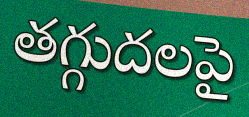
తగ్గుదలపై